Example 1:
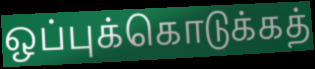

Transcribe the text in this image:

ஒப்புக்கொடுக்கத்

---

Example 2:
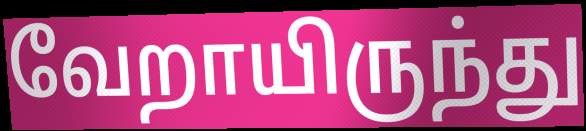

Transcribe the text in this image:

வேறாயிருந்து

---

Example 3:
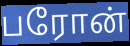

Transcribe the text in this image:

பரோன்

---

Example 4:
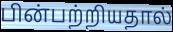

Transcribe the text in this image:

பின்பற்றியதால்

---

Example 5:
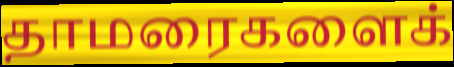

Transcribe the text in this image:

தாமரைகளைக்